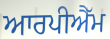
ਆਰਪੀਐੱਮ